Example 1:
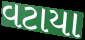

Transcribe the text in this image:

વટાયા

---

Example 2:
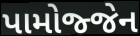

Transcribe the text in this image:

પામોજ્જેન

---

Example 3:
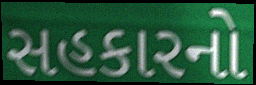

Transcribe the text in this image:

સહકારનો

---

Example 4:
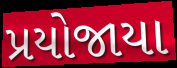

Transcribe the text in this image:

પ્રયોજાયા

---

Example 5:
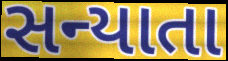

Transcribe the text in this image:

સન્યાતા